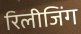
रिलीजिंग